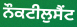
ਨੌਕਟੀਲੁਸੈਂਟ